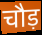
चौड़